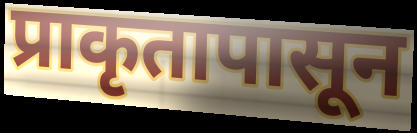
प्राकृतापासून